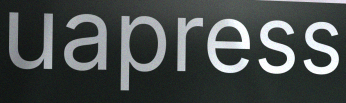
uapress